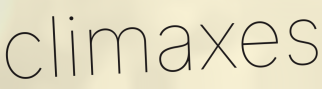
climaxes